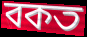
বকত